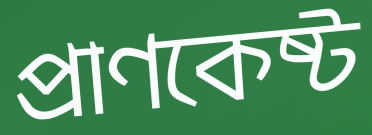
প্রাণকেষ্ট